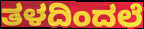
ತಳದಿಂದಲೆ